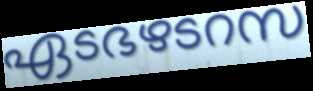
ഏടഭഴടറസ